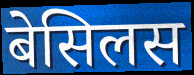
बेसिलस